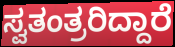
ಸ್ವತಂತ್ರರಿದ್ದಾರೆ